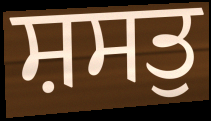
ਸ਼ਸਤੁ